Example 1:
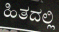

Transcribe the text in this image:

ಹಿತದಲ್ಲಿ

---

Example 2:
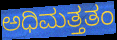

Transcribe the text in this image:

ಅಧಿಮತ್ತತಂ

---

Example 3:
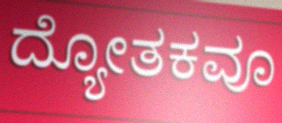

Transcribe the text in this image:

ದ್ಯೋತಕವೂ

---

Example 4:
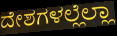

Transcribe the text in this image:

ದೇಶಗಳಲ್ಲೆಲ್ಲಾ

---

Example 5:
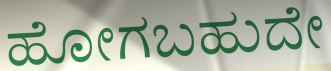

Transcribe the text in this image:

ಹೋಗಬಹುದೇ